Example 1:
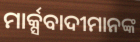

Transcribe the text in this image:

ମାର୍କ୍ସବାଦୀମାନଙ୍କ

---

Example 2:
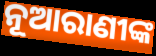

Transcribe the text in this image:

ନୂଆରାଣୀଙ୍କ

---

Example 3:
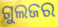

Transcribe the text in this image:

ଗୁଲଜର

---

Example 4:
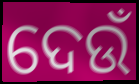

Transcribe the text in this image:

ଦେଉଁ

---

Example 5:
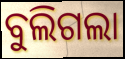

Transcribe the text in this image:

ବୁଲିଗଲା